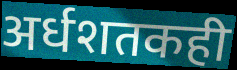
अर्धशतकही